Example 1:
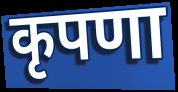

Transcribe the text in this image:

कृपणा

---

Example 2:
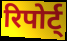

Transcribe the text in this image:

रिपोर्ट्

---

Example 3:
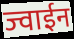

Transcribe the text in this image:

ज्वाईन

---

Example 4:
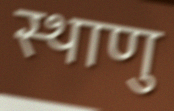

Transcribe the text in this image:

स्थाणु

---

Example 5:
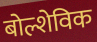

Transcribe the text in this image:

बोल्शेविक